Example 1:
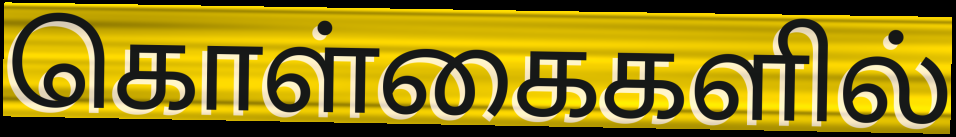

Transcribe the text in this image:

கொள்கைகளில்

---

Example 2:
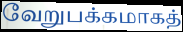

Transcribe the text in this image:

வேறுபக்கமாகத்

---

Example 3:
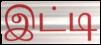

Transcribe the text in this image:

இட்டி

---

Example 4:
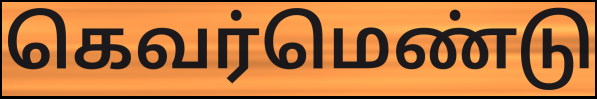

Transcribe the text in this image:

கெவர்மெண்டு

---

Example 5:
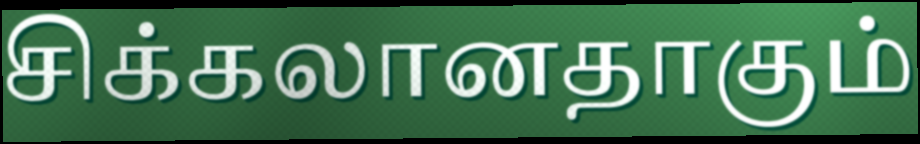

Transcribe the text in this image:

சிக்கலானதாகும்